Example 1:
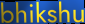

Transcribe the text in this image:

bhikshu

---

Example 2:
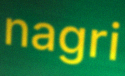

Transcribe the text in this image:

nagri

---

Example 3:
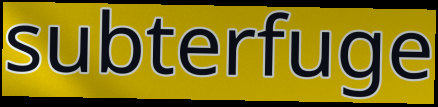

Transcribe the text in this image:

subterfuge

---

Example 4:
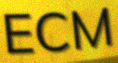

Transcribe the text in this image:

ECM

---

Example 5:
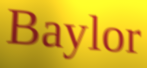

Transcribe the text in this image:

Baylor